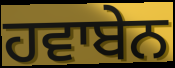
ਹਵਾਬੇਨ